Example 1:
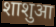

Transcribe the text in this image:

शाशुआ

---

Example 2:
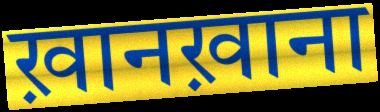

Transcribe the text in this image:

ख़ानख़ाना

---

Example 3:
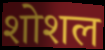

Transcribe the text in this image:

शोशल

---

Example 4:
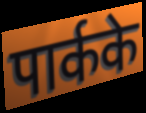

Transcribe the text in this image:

पार्कके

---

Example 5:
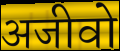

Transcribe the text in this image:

अजीवो